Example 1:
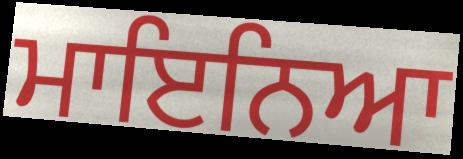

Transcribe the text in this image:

ਮਾਇਨਿਆ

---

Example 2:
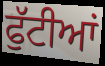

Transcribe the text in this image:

ਫੁੱਟੀਆਂ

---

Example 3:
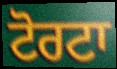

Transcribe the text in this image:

ਟੋਰਟਾ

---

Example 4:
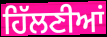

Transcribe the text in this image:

ਹਿੱਲਣੀਆਂ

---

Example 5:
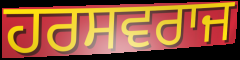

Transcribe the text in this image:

ਹਰਸਵਰਾਜ